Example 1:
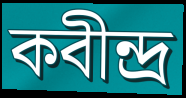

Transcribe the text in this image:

কবীন্দ্র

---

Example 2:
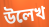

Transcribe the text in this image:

উলেখ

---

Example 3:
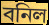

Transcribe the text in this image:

বনিল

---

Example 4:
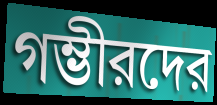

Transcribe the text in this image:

গম্ভীরদের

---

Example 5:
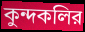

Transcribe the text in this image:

কুন্দকলির